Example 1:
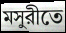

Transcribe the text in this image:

মসুরীতে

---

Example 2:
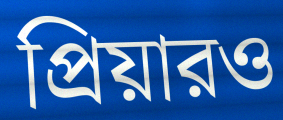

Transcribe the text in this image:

প্রিয়ারও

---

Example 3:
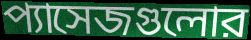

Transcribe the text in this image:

প্যাসেজগুলোর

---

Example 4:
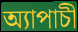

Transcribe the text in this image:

অ্যাপাচী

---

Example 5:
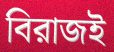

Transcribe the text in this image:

বিরাজই